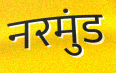
नरमुंड